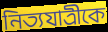
নিত্যযাত্রীকে